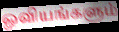
ஓவியங்களும்